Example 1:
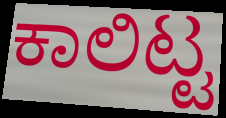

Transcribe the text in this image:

ಕಾಲಿಟ್ಟ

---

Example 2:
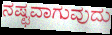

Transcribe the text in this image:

ನಷ್ಟವಾಗುವುದು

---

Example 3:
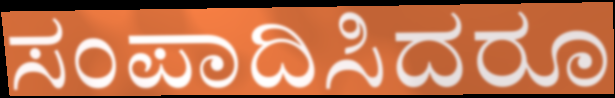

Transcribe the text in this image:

ಸಂಪಾದಿಸಿದರೂ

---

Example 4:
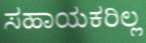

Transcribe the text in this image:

ಸಹಾಯಕರಿಲ್ಲ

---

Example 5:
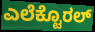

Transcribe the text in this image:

ಎಲೆಕ್ಟೊರಲ್